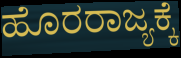
ಹೊರರಾಜ್ಯಕ್ಕೆ